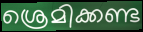
ശ്രെമിക്കണ്ട